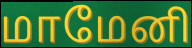
மாமேனி